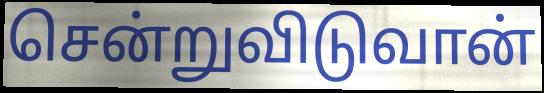
சென்றுவிடுவான்